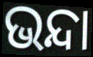
ଭନ୍ଦା